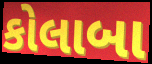
કોલાબા